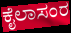
ಕೈಲಾಸಂರ